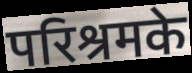
परिश्रमके